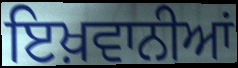
ਇਖ਼ਵਾਨੀਆਂ